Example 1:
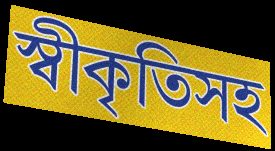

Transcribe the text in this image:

স্বীকৃতিসহ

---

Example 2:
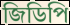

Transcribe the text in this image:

জিডিপি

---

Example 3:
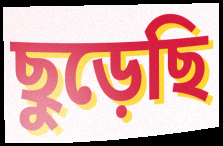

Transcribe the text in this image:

ছুড়েছি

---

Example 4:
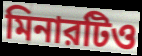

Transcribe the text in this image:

মিনারটিও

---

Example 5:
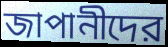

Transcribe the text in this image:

জাপানীদের